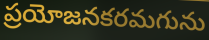
ప్రయోజనకరమగును